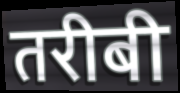
तरीबी